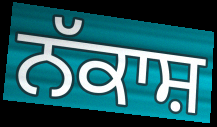
ਨੱਕਾਸ਼